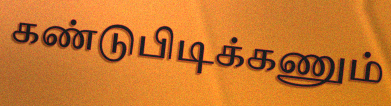
கண்டுபிடிக்கணும்